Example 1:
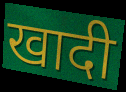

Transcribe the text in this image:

खादी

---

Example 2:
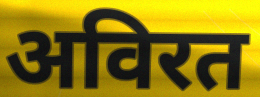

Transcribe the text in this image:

अविरत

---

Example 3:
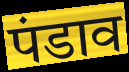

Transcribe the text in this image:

पंडाव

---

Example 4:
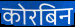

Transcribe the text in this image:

कोरबिन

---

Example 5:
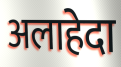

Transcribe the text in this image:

अलाहेदा